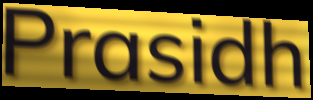
Prasidh